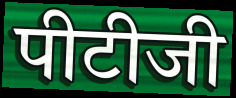
पीटीजी